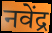
नवेंद्र